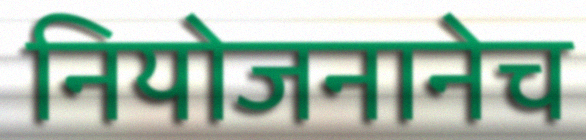
नियोजनानेच